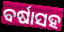
ବର୍ଷାସହ